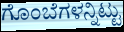
ಗೊಂಬೆಗಳನ್ನಿಟ್ಟು